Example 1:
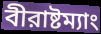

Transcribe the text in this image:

বীরাষ্টম্যাং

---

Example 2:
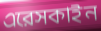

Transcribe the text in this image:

এরেসকাইন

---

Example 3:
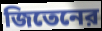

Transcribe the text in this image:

জিতেনের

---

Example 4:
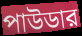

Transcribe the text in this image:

পাউডার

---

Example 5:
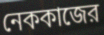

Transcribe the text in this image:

নেককাজের